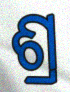
ଶ୍ର